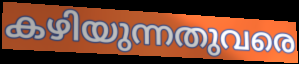
കഴിയുന്നതുവരെ